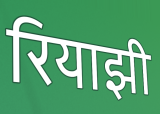
रियाझी